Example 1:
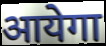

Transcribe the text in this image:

आयेगा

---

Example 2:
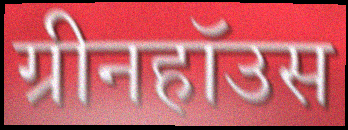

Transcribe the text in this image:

ग्रीनहॉउस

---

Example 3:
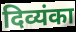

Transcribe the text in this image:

दिव्यंका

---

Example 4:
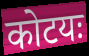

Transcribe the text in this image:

कोटयः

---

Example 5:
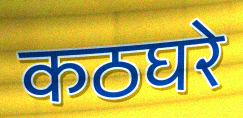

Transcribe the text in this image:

कठघरे